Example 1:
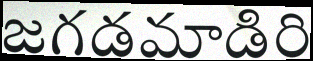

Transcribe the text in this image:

జగడమాడిరి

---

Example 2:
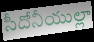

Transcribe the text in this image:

సీదోనీయుల్లా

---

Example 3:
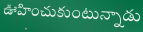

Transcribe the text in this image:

ఊహించుకుంటున్నాడు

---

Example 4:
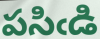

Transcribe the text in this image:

పసిఁడి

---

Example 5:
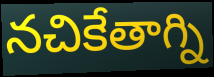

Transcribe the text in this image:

నచికేతాగ్ని